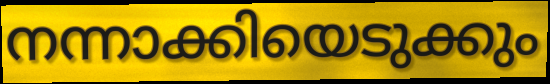
നന്നാക്കിയെടുക്കും